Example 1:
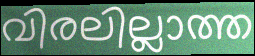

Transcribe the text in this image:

വിരലില്ലാത്ത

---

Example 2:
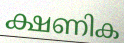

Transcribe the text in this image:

ക്ഷണിക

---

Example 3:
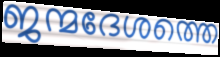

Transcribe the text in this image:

ജന്മദേശത്തെ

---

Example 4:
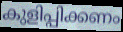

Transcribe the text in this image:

കുളിപ്പിക്കണം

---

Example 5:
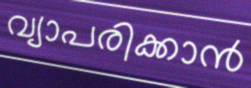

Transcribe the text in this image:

വ്യാപരിക്കാൻ